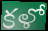
కళో